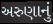
અરુણાનું